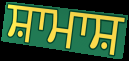
ਸ਼ਾਮਾਸ਼